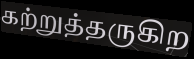
கற்றுத்தருகிற